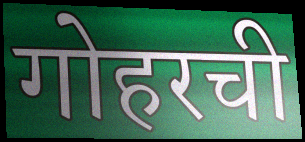
गोहरची